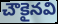
చౌకైనవి